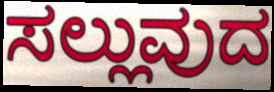
ಸಲ್ಲುವುದ